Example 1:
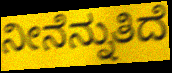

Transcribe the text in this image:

ನೀನೆನ್ನುತಿದೆ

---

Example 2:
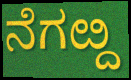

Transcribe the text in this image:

ನೆಗೞ್ದ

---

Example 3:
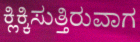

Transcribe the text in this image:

ಕ್ಲಿಕ್ಕಿಸುತ್ತಿರುವಾಗ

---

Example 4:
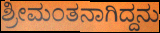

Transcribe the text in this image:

ಶ್ರೀಮಂತನಾಗಿದ್ದನು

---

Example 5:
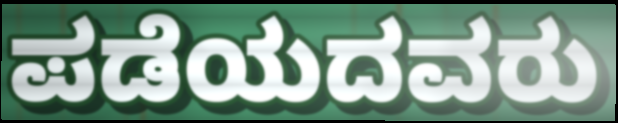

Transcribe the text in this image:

ಪಡೆಯದವರು